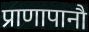
प्राणापानौ